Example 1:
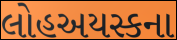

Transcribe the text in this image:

લોહઅયસ્કના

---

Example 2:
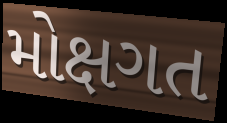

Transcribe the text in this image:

મોક્ષગત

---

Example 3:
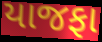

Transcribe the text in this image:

યાજફા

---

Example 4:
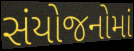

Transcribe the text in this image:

સંયોજનોમાં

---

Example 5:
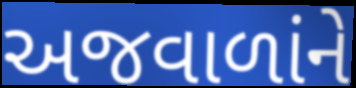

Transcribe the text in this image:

અજવાળાંને